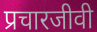
प्रचारजीवी